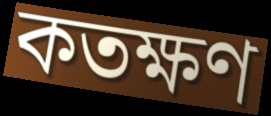
কতক্ষণ